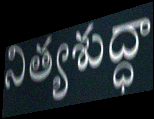
నిత్యశుద్ధా